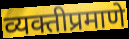
व्यक्तीप्रमाणे